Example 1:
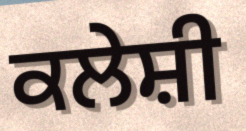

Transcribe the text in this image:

ਕਲੇਸ਼ੀ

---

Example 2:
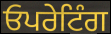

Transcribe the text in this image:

ਓਪਰੇਟਿੰਗ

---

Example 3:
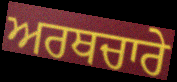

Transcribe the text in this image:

ਅਰਥਚਾਰੇ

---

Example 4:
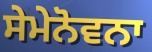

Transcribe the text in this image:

ਸੇਮੇਨੋਵਨਾ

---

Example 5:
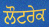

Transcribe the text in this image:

ਲੌਟਰੇਕ